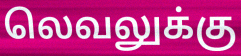
லெவலுக்கு